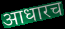
आधारच